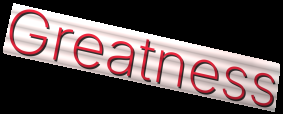
Greatness